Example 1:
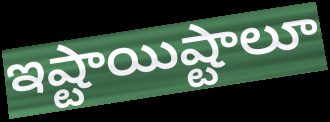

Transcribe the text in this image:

ఇష్టాయిష్టాలూ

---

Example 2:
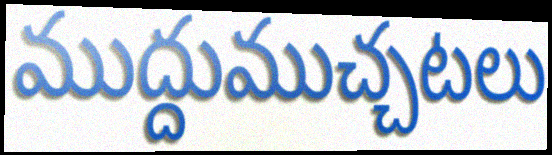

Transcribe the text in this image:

ముద్దుముచ్చటలు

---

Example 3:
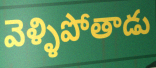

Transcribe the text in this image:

వెళ్ళిపోతాడు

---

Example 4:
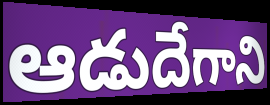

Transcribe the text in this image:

ఆడుదేగాని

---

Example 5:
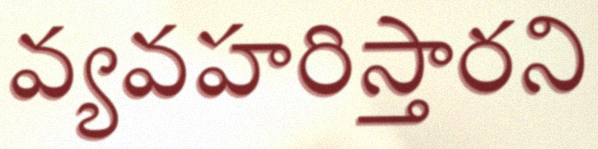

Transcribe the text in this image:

వ్యవహరిస్తారని